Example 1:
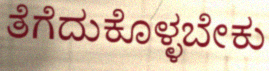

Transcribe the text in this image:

ತೆಗೆದುಕೊಳ್ಳಬೇಕು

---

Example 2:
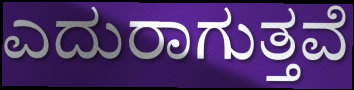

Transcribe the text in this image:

ಎದುರಾಗುತ್ತವೆ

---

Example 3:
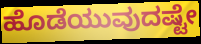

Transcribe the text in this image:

ಹೊಡೆಯುವುದಷ್ಟೇ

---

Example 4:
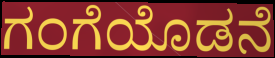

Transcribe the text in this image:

ಗಂಗೆಯೊಡನೆ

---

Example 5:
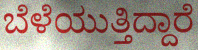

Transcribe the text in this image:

ಬೆಳೆಯುತ್ತಿದ್ದಾರೆ